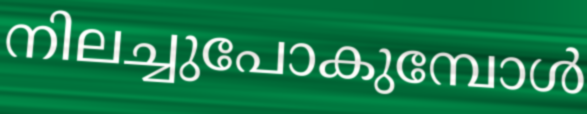
നിലച്ചുപോകുമ്പോൾ